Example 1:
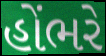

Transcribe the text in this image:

હોંભરે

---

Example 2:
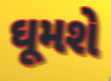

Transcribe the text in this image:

ઘૂમશે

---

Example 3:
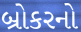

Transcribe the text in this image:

બ્રોકરનો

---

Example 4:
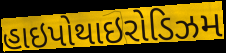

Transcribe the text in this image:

હાઇપોથાઇરોડિઝમ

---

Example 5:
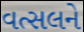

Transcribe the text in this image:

વત્સલને